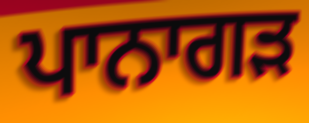
ਪਾਨਾਗੜ